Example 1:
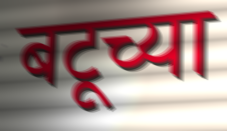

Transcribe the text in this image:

बटूच्या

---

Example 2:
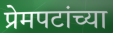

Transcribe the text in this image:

प्रेमपटांच्या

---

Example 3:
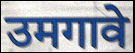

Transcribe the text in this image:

उमगावे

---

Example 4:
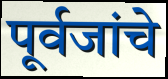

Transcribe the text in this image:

पूर्वजांचे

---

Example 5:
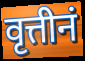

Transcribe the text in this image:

वृत्तीनं